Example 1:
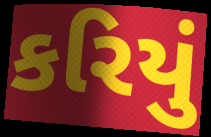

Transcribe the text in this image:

કરિયું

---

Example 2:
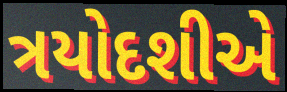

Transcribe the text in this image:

ત્રયોદશીએ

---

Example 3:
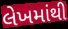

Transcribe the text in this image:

લેખમાંથી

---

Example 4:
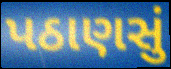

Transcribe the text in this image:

પઠાણસું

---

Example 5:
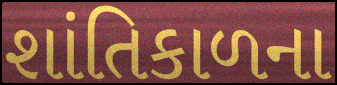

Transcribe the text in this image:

શાંતિકાળના